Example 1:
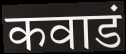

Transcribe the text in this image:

कवाडं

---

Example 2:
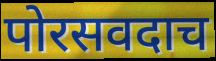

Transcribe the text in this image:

पोरसवदाच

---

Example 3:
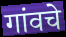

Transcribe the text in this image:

गांवचे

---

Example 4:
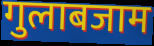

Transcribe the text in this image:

गुलाबजाम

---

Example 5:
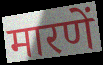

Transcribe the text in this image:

मारणें